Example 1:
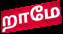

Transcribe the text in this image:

றாமே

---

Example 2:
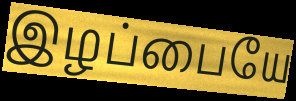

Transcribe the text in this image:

இழப்பையே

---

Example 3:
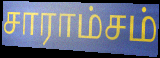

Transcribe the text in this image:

சாராம்சம்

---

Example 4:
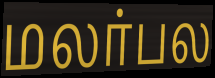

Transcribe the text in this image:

மலர்பல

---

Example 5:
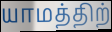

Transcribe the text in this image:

யாமத்திற்